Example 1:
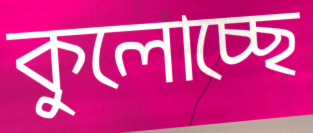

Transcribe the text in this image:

কুলোচ্ছে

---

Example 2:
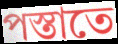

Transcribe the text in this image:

পস্তাতে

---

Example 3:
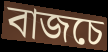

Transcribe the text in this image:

বাজচে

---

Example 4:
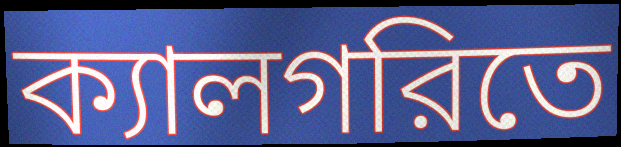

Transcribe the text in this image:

ক্যালগরিতে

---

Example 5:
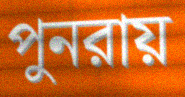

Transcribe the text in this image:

পুনরায়